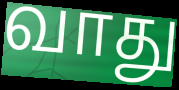
வாது